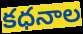
కధనాల